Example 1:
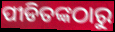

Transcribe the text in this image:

ପୀଡିତଙ୍କଠାରୁ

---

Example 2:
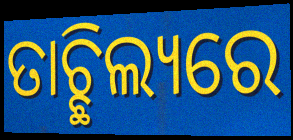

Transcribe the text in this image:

ତାଚ୍ଛିଲ୍ୟରେ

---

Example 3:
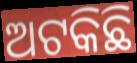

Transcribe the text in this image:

ଅଟକିଛି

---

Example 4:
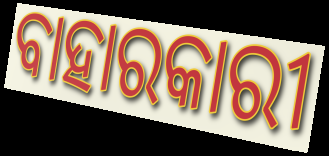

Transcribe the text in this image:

ବାହାରକାରୀ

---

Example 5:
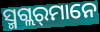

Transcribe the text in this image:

ସ୍ମଗ୍ଲର୍‌ମାନେ